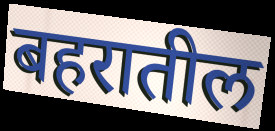
बहरातील